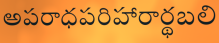
అపరాధపరిహారార్థబలి